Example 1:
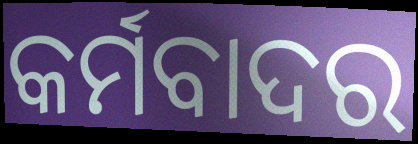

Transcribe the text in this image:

କର୍ମବାଦର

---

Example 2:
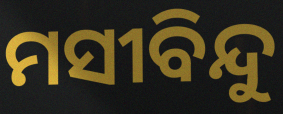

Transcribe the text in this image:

ମସୀବିନ୍ଦୁ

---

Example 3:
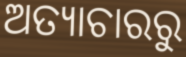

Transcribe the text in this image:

ଅତ୍ୟାଚାରରୁ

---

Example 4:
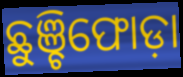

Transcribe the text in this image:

ଛୁଞ୍ଚିଫୋଡ଼ା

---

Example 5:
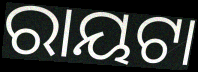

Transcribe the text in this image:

ରାୟଟା